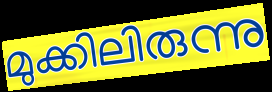
മുക്കിലിരുന്നു